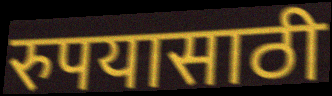
रुपयासाठी